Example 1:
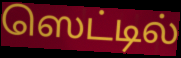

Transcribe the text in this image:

ஸெட்டில்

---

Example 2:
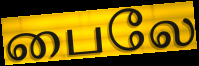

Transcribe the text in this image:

பைலே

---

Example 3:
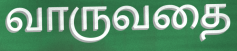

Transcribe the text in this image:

வாருவதை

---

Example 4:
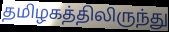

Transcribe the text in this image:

தமிழகத்திலிருந்து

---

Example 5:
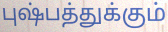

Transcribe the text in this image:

புஷ்பத்துக்கும்